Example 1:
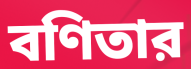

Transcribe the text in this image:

বণিতার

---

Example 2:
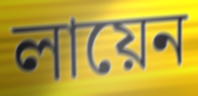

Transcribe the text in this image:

লায়েন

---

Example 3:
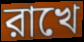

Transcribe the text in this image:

রাখে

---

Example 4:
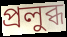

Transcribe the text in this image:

প্রলুব্ধ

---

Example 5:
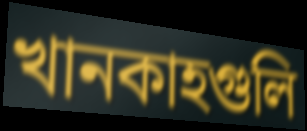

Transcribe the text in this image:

খানকাহগুলি